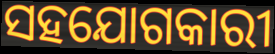
ସହଯୋଗକାରୀ